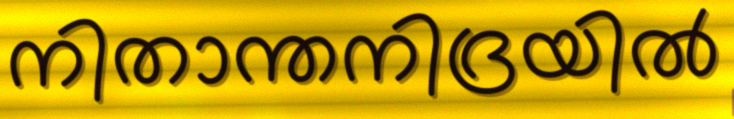
നിതാന്തനിദ്രയിൽ